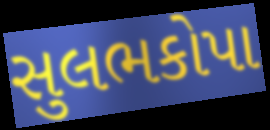
સુલભકોપા